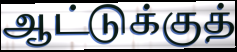
ஆட்டுக்குத்